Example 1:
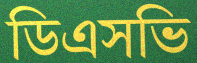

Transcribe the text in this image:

ডিএসভি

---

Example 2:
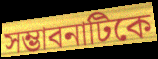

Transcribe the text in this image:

সম্ভাবনাটিকে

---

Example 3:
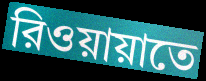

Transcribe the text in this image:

রিওয়ায়াতে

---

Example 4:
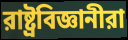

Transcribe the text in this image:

রাষ্ট্রবিজ্ঞানীরা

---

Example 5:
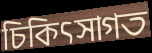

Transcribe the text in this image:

চিকিৎসাগত